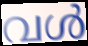
വൾ